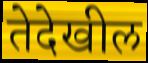
तेदेखील